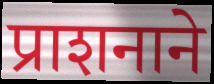
प्राशनाने